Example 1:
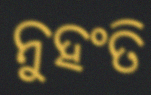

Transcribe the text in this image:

ନୁହଂତି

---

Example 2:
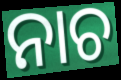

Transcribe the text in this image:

ନାଚ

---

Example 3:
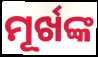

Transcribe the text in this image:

ମୂର୍ଖଙ୍କ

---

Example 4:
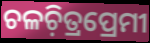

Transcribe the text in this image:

ଚଳଚ଼ିତ୍ରପ୍ରେମୀ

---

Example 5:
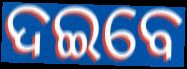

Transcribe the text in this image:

ଦଇବେ